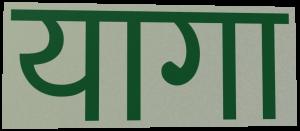
यागा